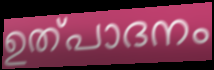
ഉത്പാദനം